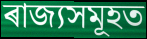
ৰাজ্যসমূহত